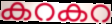
കറകറ